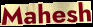
Mahesh